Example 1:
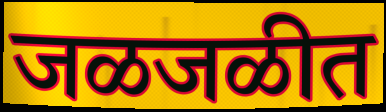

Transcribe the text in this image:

जळजळीत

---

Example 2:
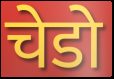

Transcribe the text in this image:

चेडो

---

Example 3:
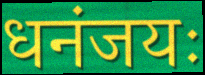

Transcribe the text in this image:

धनंजयः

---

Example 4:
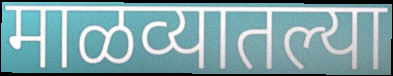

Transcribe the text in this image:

माळव्यातल्या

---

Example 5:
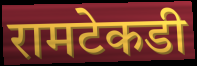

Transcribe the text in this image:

रामटेकडी